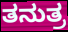
ತನುತ್ರ